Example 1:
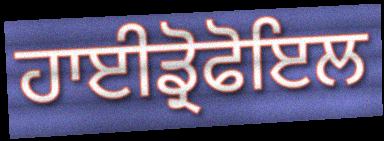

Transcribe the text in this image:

ਹਾਈਡ੍ਰੋਫੋਇਲ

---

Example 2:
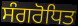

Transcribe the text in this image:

ਸੰਗਰੋਧਿਤ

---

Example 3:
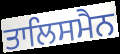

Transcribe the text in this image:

ਤਾਲਿਸਮੈਨ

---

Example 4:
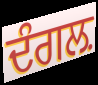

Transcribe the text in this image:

ਦੰਗਲ਼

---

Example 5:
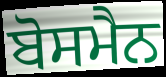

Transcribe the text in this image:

ਬੋਸਮੈਨ